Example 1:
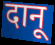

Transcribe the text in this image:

दानू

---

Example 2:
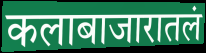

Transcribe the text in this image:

कलाबाजारातलं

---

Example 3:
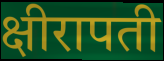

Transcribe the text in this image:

क्षीरापती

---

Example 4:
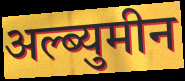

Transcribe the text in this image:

अल्ब्युमीन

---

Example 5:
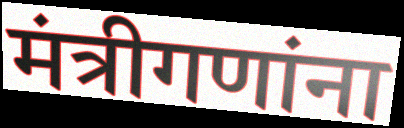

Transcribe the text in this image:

मंत्रीगणांना